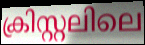
ക്രിസ്റ്റലിലെ